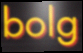
bolg